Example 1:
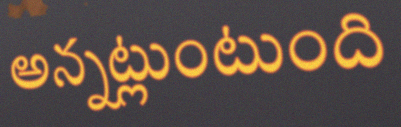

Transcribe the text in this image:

అన్నట్లుంటుంది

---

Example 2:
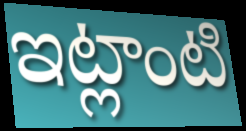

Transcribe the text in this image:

ఇట్లాంటి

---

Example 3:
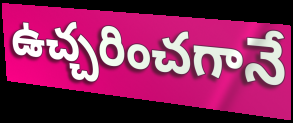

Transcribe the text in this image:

ఉచ్చరించగానే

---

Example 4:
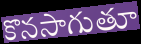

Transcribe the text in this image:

కొనసాగుతూ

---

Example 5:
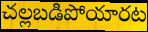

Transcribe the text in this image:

చల్లబడిపోయారట